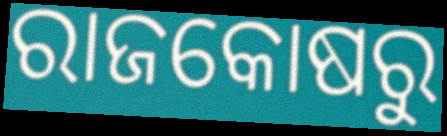
ରାଜକୋଷରୁ